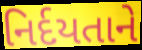
નિર્દયતાને